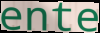
ente